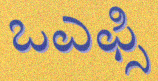
ಒಎಫ್ಸಿ